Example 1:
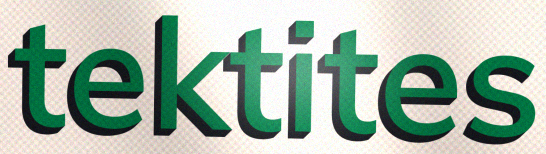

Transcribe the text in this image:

tektites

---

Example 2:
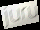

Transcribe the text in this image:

juru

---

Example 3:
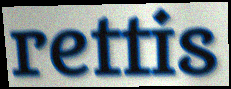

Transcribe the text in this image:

rettis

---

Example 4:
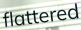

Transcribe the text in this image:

flattered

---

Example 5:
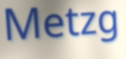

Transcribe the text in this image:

Metzg